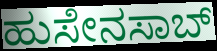
ಹುಸೇನಸಾಬ್